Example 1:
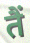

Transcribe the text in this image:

तैं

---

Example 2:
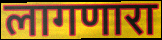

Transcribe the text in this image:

लागणारा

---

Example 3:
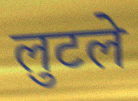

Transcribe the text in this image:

लुटले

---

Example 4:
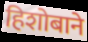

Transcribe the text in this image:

हिशोबाने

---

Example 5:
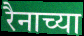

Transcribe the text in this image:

रैनाच्या